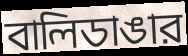
বালিডাঙার